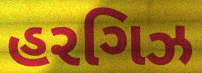
હરગિઝ